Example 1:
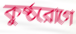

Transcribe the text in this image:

কুষ্ঠরোগে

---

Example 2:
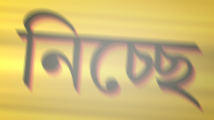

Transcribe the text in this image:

নিচ্ছে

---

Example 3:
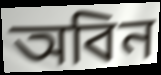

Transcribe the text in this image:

অবিন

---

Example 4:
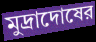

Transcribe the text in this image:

মুদ্রাদোষের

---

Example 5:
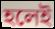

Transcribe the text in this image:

হলেই